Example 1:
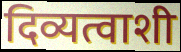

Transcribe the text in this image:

दिव्यत्वाशी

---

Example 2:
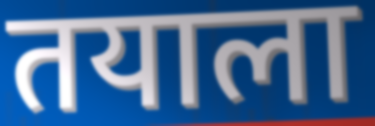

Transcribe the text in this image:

तयाला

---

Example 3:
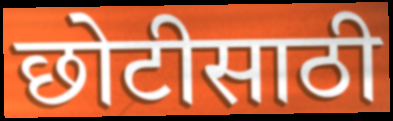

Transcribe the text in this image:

छोटीसाठी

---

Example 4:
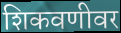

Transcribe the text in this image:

शिकवणीवर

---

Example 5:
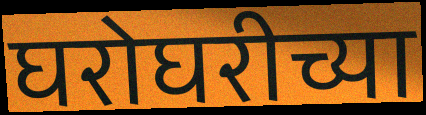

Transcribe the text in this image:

घरोघरीच्या